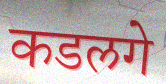
कडलगे